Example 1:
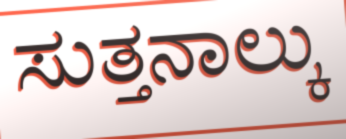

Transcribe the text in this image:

ಸುತ್ತನಾಲ್ಕು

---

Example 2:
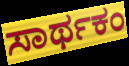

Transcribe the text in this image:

ಸಾರ್ಥಕಂ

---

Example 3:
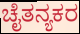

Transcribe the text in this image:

ಚೈತನ್ಯಕರ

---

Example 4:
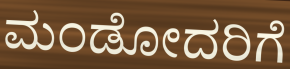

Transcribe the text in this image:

ಮಂಡೋದರಿಗೆ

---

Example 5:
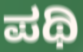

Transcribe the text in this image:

ಪಥಿ